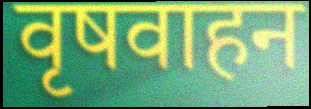
वृषवाहन